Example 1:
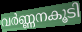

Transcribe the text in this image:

വർണ്ണനകൂടി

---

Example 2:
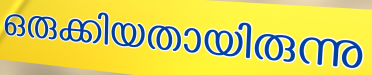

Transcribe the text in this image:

ഒരുക്കിയതായിരുന്നു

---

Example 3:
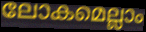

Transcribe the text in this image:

ലോകമെല്ലാം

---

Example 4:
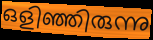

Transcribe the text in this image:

ഒളിഞ്ഞിരുന്നു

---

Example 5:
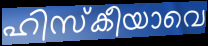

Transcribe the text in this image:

ഹിസ്കീയാവെ